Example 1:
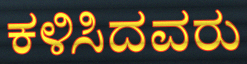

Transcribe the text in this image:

ಕಳಿಸಿದವರು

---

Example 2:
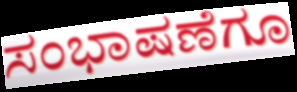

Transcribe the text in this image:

ಸಂಭಾಷಣೆಗೂ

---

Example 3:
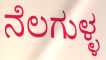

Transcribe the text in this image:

ನೆಲಗುಳ್ಳ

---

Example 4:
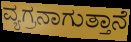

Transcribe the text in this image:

ವ್ಯಗ್ರನಾಗುತ್ತಾನೆ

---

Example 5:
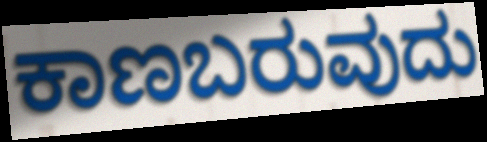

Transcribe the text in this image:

ಕಾಣಬರುವುದು